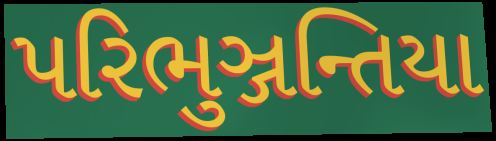
પરિભુઞ્જન્તિયા